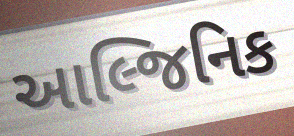
આલ્જિનિક